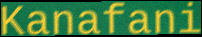
Kanafani